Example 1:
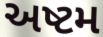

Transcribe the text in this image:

અષ્ટમ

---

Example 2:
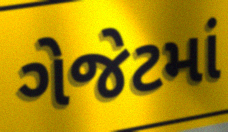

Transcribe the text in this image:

ગેજેટમાં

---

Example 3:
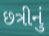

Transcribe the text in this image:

છત્રીનું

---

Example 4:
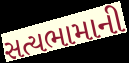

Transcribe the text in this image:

સત્યભામાની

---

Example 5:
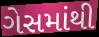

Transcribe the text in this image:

ગેસમાંથી